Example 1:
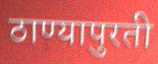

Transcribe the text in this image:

ठाण्यापुरती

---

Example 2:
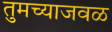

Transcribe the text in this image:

तुमच्याजवळ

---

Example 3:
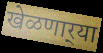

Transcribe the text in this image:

खेळणार्या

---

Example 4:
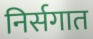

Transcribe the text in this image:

निर्सगात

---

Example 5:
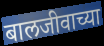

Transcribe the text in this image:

बालजीवाच्या